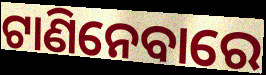
ଟାଣିନେବାରେ